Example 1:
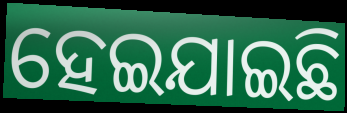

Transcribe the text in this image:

ହେଇଯାଇଛି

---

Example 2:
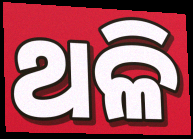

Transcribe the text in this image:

ଥଳି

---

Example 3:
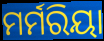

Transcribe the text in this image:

ମର୍ମରିୟା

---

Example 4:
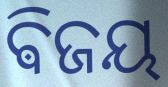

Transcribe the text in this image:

ଵିଜୟ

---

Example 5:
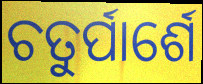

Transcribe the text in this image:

ଚତୁର୍ପାର୍ଶେ